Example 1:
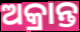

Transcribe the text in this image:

ଅକ୍ରାନ୍ତ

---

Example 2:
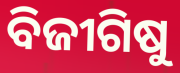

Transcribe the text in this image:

ବିଜୀଗିଷୁ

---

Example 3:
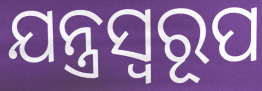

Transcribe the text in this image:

ଯନ୍ତ୍ରସ୍ୱରୂପ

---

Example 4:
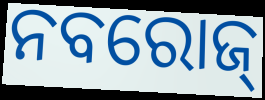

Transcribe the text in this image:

ନବରୋଜ୍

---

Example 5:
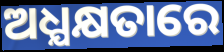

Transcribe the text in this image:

ଅଧ୍ଯକ୍ଷତାରେ